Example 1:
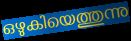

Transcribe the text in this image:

ഒഴുകിയെത്തുന്നു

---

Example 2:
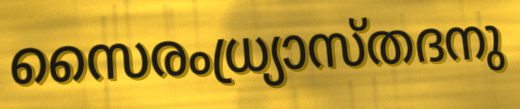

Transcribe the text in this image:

സൈരംധ്ര്യാസ്തദനു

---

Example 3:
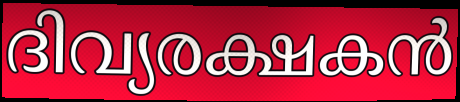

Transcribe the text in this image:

ദിവ്യരക്ഷകൻ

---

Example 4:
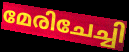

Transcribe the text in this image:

മേരിചേച്ചി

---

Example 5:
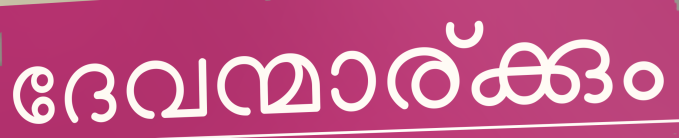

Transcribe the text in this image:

ദേവന്മാര്ക്കും